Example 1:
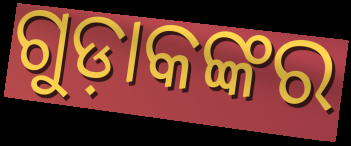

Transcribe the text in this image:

ଗୁଡ଼ାକଙ୍କର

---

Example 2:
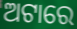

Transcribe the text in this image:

ଅଟାରେ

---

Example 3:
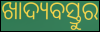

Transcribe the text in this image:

ଖାଦ୍ୟବସ୍ତୁର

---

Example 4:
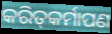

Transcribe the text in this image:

କରିତ୍‌କର୍ମାପଣ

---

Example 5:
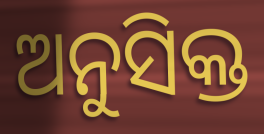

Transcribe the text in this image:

ଅନୁସିକ୍ତ